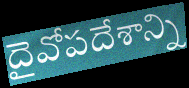
దైవోపదేశాన్ని